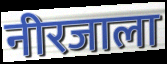
नीरजाला